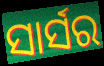
ସାର୍ସର